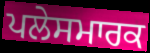
ਪਲੇਸਮਾਰਕ